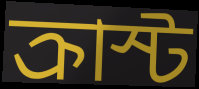
ক্রাস্ট